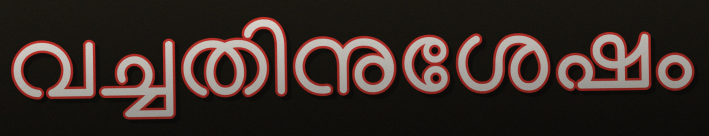
വച്ചതിനുശേഷം